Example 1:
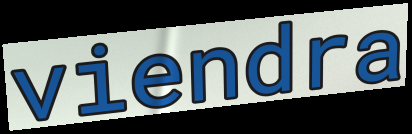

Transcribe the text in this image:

viendra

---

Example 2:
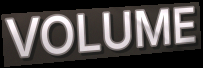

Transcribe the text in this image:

VOLUME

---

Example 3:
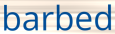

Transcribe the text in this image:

barbed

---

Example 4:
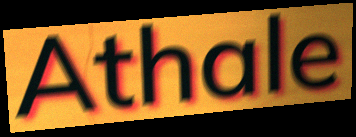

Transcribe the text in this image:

Athale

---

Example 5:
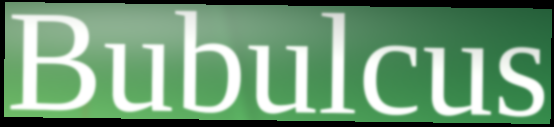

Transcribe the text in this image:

Bubulcus